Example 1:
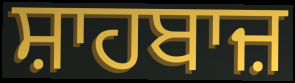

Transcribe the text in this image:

ਸ਼ਾਹਬਾਜ਼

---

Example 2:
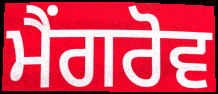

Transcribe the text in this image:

ਮੈਂਗਰੋਵ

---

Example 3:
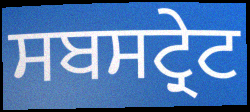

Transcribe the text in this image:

ਸਬਸਟ੍ਰੇਟ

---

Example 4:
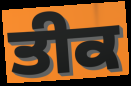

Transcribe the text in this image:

ਤੀਕ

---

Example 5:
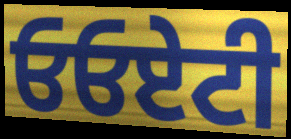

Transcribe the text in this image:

ਓਓਏਟੀ